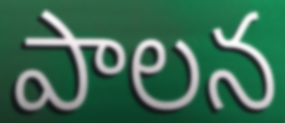
పాలన